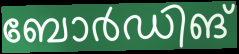
ബോർഡിങ്